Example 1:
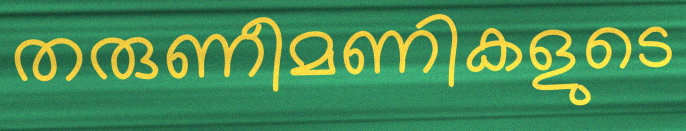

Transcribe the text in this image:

തരുണീമണികളുടെ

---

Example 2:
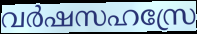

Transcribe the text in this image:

വർഷസഹസ്രേ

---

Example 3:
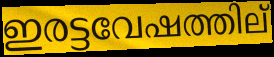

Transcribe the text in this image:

ഇരട്ടവേഷത്തില്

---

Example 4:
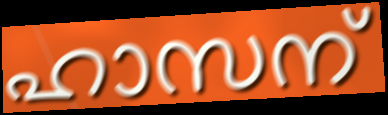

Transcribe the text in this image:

ഹാസന്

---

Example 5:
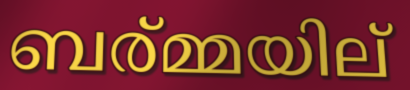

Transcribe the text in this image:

ബര്മ്മയില്